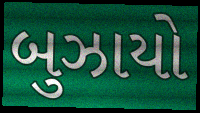
બુઝાયો